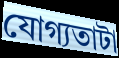
যোগ্যতাটা